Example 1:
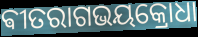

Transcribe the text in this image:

ଵୀତରାଗଭୟକ୍ରୋଧା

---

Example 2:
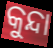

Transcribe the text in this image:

କୁନ୍ଦା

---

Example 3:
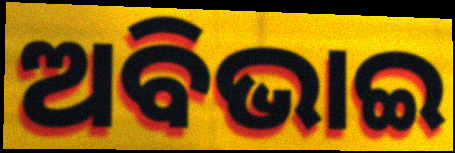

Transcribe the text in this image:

ଅବିଭାଇ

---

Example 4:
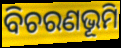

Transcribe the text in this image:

ବିଚରଣଭୂମି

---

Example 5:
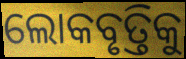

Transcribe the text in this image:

ଲୋକବୃତ୍ତିକୁ